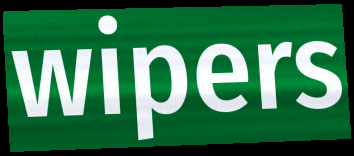
wipers